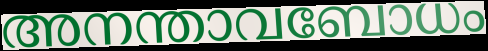
അനന്താവബോധം